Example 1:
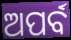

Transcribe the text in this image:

ଅପର୍ବ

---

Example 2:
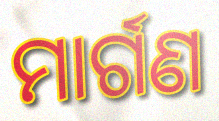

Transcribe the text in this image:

ମାର୍ଗଣ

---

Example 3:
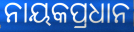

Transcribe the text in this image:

ନାୟକପ୍ରଧାନ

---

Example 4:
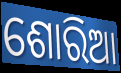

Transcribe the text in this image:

ଶୋରିଆ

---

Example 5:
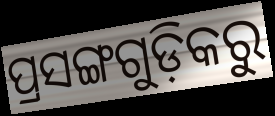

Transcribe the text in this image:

ପ୍ରସଙ୍ଗଗୁଡ଼ିକରୁ